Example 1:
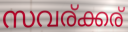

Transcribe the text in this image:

സവര്ക്കര്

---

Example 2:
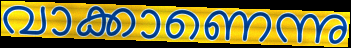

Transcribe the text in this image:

വാക്കാണെന്നു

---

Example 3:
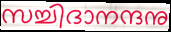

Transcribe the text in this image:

സച്ചിദാനന്ദനു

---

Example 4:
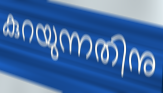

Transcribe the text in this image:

കുറയുന്നതിനു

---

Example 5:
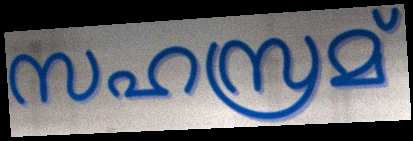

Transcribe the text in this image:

സഹസ്രമ്